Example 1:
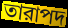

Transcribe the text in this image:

তারাপদ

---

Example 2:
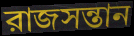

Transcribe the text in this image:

রাজসন্তান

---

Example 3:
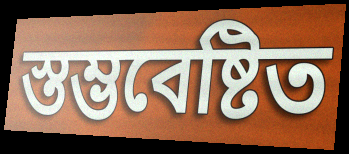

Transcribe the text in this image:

স্তম্ভবেষ্টিত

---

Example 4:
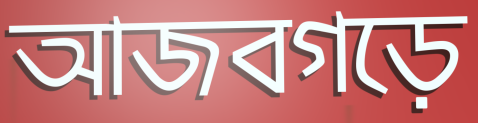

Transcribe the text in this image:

আজবগড়ে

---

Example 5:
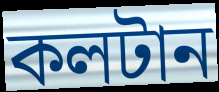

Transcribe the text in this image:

কলটান